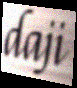
daji